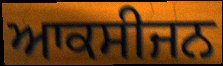
ਆਕਸੀਜਨ